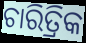
ଚାରିତ୍ରିକ